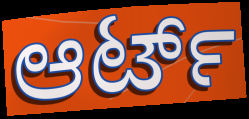
ಆರ್ಟ್